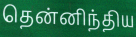
தென்னிந்திய